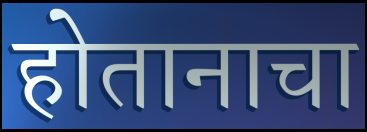
होतानाचा